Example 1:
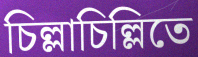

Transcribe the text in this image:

চিল্লাচিল্লিতে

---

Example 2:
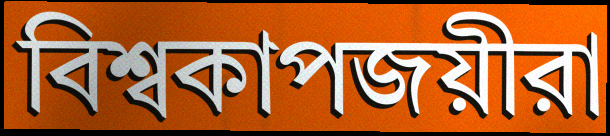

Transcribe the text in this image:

বিশ্বকাপজয়ীরা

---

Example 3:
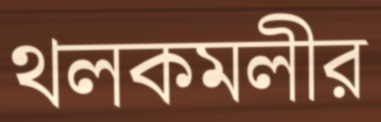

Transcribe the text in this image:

থলকমলীর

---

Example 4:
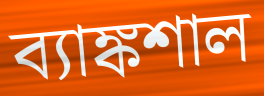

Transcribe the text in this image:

ব্যাঙ্কশাল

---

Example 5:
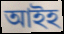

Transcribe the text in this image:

আইহ